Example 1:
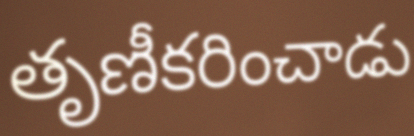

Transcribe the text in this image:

తృణీకరించాడు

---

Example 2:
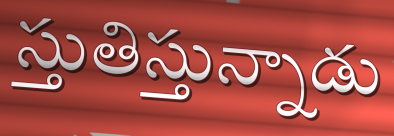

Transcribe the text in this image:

స్తుతిస్తున్నాడు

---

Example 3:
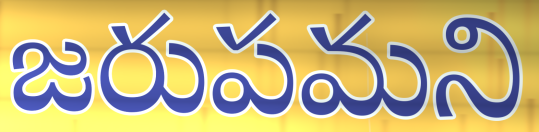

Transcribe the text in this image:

జరుపమని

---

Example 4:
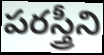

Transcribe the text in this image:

పరస్త్రీని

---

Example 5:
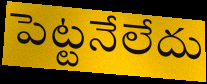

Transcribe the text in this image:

పెట్టనేలేదు